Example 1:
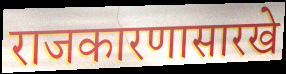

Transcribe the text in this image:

राजकारणासारखे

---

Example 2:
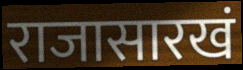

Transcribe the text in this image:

राजासारखं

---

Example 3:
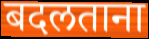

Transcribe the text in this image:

बदलताना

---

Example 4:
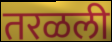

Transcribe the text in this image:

तरळली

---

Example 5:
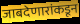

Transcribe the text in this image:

जाबदेणारांकडून